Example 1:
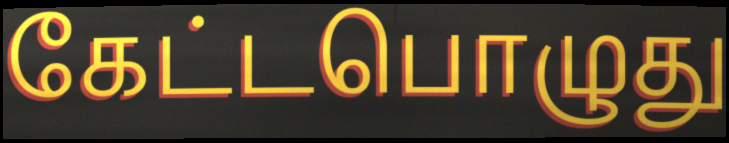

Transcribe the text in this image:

கேட்டபொழுது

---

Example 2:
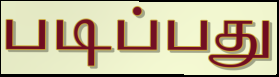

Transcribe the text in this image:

படிப்பது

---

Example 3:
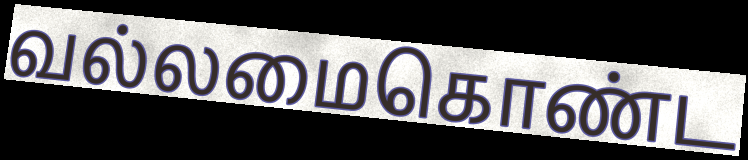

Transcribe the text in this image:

வல்லமைகொண்ட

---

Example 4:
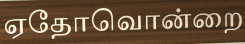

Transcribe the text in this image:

ஏதோவொன்றை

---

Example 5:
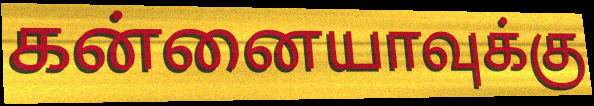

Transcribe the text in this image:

கன்னையாவுக்கு